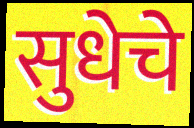
सुधेचे